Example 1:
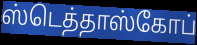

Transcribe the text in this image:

ஸ்டெத்தாஸ்கோப்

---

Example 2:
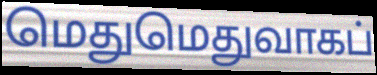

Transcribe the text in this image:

மெதுமெதுவாகப்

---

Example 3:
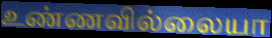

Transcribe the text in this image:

உண்ணவில்லையா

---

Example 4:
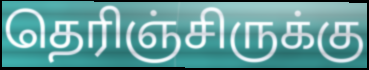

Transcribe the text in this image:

தெரிஞ்சிருக்கு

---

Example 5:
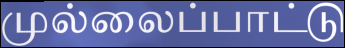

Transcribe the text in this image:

முல்லைப்பாட்டு